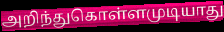
அறிந்துகொள்ளமுடியாது